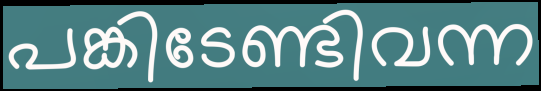
പങ്കിടേണ്ടിവന്ന